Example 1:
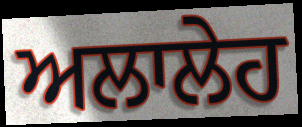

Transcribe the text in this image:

ਅਲਾਲੇਹ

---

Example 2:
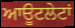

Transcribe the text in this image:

ਆਊਟਲੇਟਾਂ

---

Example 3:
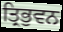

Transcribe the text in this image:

ਤ੍ਰਿਭੁਵਨ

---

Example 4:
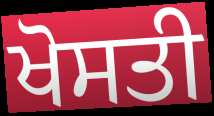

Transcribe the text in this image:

ਖੋਸਤੀ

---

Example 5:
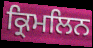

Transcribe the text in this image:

ਕ੍ਰਿਮਲਿਨ